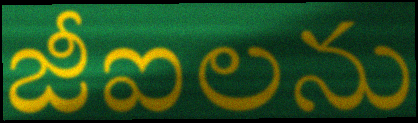
జీఐలను